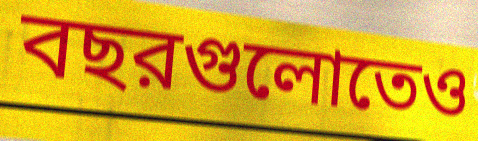
বছরগুলোতেও